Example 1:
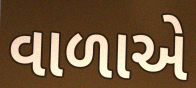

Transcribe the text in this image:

વાળાએ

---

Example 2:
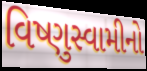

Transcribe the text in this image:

વિષ્ણુસ્વામીનો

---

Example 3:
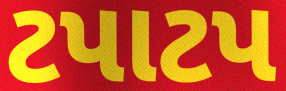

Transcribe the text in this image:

ટપાટપ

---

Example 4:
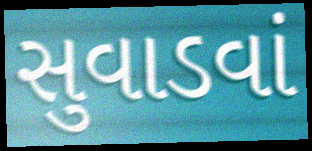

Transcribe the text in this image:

સુવાડવાં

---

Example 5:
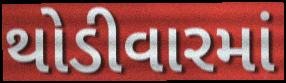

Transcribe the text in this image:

થોડીવારમાં